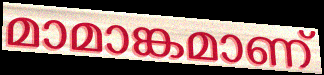
മാമാങ്കമാണ്